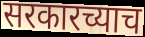
सरकारच्याच